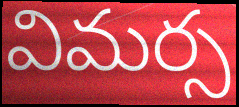
విమర్స